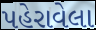
પહેરાવેલા